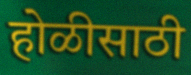
होळीसाठी